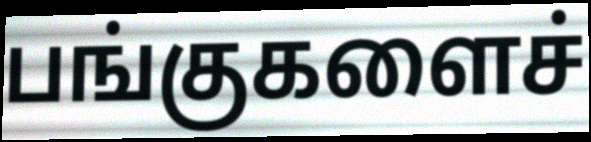
பங்குகளைச்